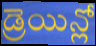
డ్రెయిన్లో